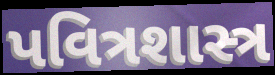
પવિત્રશાસ્ત્ર